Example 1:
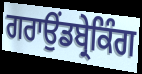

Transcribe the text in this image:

ਗਰਾਉਂਡਬ੍ਰੇਕਿੰਗ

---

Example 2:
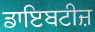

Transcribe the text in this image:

ਡਾਇਬਟੀਜ਼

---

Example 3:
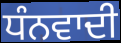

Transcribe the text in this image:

ਧੰਨਵਾਦੀ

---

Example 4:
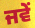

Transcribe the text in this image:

ਜਵੇਂ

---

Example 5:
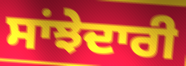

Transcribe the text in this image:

ਸਾਂਝੇਦਾਰੀ